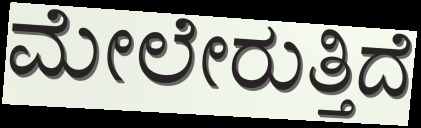
ಮೇಲೇರುತ್ತಿದೆ